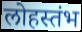
लोहस्तंभ